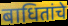
बाधितांचे